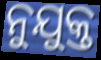
ନୁଯୁକ୍ତ